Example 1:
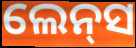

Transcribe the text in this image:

ଲେନ୍‌ସ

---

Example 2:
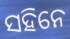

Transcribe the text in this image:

ସହିନେ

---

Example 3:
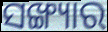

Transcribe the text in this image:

ସଙ୍ଖ୍ୟାର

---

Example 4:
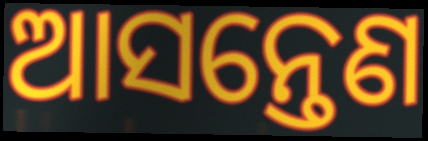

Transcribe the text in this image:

ଆସନ୍ତେଣ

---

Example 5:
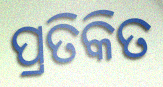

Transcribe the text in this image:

ପ୍ରତିକିତ